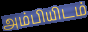
அம்பியிடம்